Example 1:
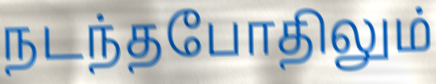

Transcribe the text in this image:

நடந்தபோதிலும்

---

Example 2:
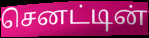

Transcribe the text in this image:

செனட்டின்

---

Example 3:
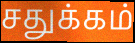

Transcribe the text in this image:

சதுக்கம்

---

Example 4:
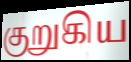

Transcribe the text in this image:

குறுகிய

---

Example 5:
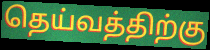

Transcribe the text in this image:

தெய்வத்திற்கு